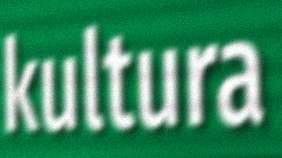
kultura